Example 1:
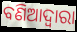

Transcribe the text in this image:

ବଣିଆଦ୍ୱାରା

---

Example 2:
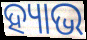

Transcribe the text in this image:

ହ୍ୟାଭ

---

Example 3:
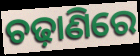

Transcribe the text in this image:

ଚଢ଼ାଣିରେ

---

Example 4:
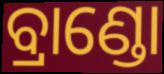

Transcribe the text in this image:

ବ୍ରାଣ୍ଡୋ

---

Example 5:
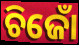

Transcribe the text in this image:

ଚିଜୋଁ